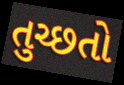
તુચ્છતો